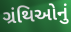
ગ્રંથિઓનું